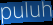
puluh